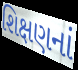
શિક્ષણનાં